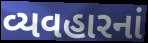
વ્યવહારનાં